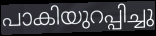
പാകിയുറപ്പിച്ചു